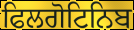
ਫਿਲਗੋਟਿਨਿਬ